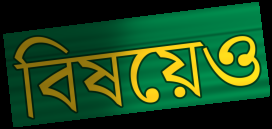
বিষয়েও